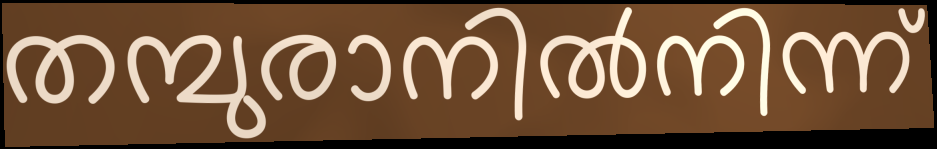
തമ്പുരാനിൽനിന്ന്